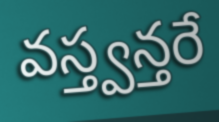
వస్త్వన్తరే